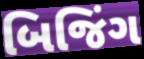
બિજિંગ